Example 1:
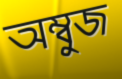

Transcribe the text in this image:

অম্বুজ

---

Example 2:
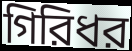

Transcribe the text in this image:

গিরিধর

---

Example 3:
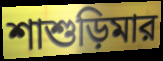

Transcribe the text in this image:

শাশুড়িমার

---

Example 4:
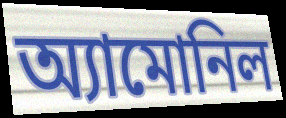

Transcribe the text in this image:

অ্যামোনিল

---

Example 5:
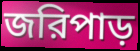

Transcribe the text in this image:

জরিপাড়